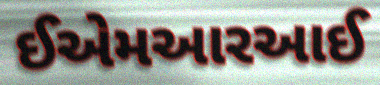
ઈએમઆરઆઈ